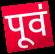
पूव॑